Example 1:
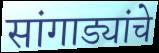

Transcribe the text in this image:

सांगाड्यांचे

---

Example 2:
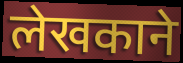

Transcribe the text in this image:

लेखकाने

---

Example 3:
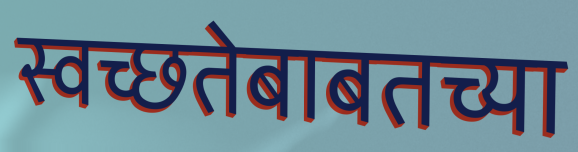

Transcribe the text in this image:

स्वच्छतेबाबतच्या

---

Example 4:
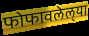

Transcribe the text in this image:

फोफावलेल्या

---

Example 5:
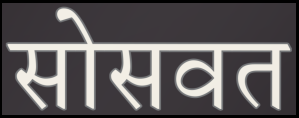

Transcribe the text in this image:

सोसवत